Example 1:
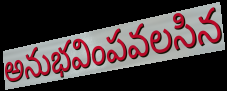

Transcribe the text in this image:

అనుభవింపవలసిన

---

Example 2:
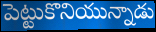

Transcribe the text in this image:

పెట్టుకొనియున్నాడు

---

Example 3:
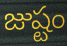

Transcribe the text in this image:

జుష్టం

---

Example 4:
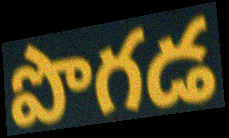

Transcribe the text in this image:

పొగడ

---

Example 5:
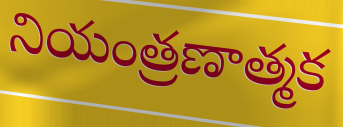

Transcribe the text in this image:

నియంత్రణాత్మక